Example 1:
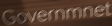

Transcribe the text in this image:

Governmnet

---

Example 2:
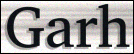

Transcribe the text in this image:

Garh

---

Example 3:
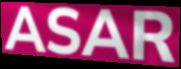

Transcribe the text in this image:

ASAR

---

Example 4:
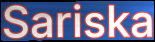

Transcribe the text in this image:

Sariska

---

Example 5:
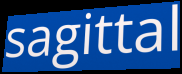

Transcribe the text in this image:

sagittal